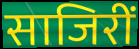
साजिरीं